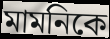
মামনিকে